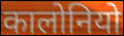
कालोनियो